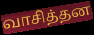
வாசித்தன